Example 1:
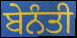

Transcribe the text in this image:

ਬੇਨੰਤੀ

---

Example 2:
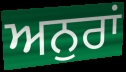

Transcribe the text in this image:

ਅਨੁਰਾਂ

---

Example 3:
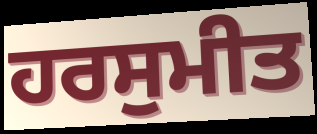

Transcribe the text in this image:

ਹਰਸੁਮੀਤ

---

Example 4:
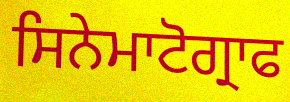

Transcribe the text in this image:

ਸਿਨੇਮਾਟੋਗ੍ਰਾਫ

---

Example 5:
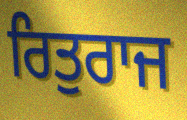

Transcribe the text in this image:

ਰਿਤੁਰਾਜ